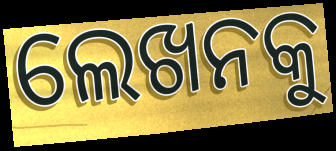
ଲେଖନକୁ